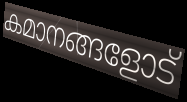
കമാനങ്ങളോട്